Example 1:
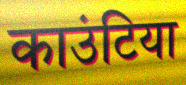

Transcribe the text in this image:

काउंटिया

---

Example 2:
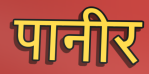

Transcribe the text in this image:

पानीर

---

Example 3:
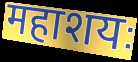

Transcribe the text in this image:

महाशयः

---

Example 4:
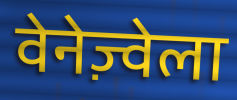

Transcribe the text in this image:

वेनेज़्वेला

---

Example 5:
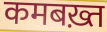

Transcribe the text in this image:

कमबख़्त